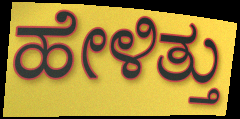
ಹೇಳಿತ್ತು